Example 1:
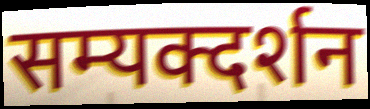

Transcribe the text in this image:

सम्यक्दर्शन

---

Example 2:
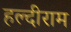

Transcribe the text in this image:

हल्दीराम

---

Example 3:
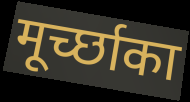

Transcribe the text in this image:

मूर्च्छाका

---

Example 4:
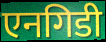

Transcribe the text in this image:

एनगिडी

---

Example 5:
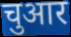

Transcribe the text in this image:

चुआर